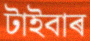
টাইবাৰ